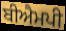
ਬੀਐਮਪੀ